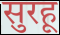
सुरहू